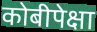
कोबीपेक्षा